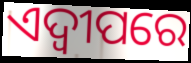
ଏଦ୍ୱୀପରେ